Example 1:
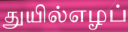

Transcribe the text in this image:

துயில்எழப்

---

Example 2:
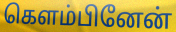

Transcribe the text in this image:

கெளம்பினேன்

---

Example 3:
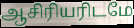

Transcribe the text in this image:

ஆசிரியரிடமே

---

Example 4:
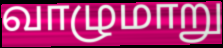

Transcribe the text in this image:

வாழுமாறு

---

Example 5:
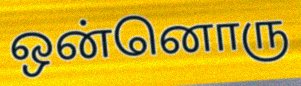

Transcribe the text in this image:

ஒன்னொரு